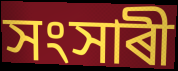
সংসাৰী